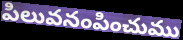
పిలువనంపించుము